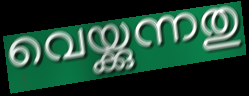
വെയ്ക്കുന്നതു